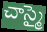
చాస్మై